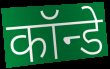
कॉन्डे